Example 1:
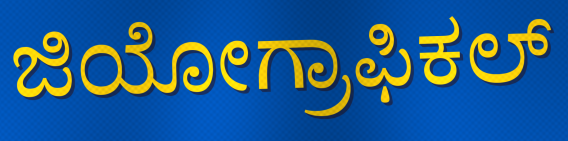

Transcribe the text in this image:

ಜಿಯೋಗ್ರಾಫಿಕಲ್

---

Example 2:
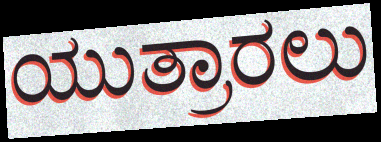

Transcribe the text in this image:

ಯುತ್ರಾರಲು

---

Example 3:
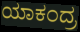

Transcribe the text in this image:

ಯಾಕಂದ್ರ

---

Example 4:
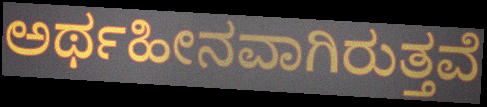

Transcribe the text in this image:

ಅರ್ಥಹೀನವಾಗಿರುತ್ತವೆ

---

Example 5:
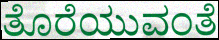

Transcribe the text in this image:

ತೊರೆಯುವಂತೆ